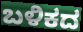
ಬಳಿಕದ